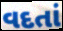
વદતાં